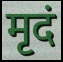
मृदं